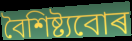
বৈশিষ্ট্যবোৰ